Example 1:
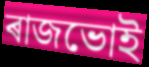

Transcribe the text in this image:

ৰাজভোই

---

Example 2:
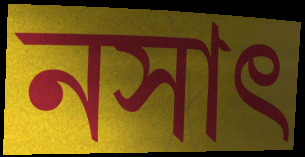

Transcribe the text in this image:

নসাৎ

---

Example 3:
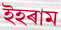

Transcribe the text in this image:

ইহৰাম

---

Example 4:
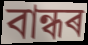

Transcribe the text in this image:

বান্ধৰ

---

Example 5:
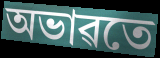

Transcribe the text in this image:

অভাৱতে